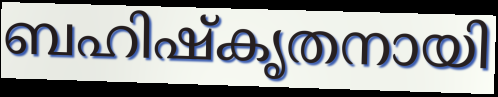
ബഹിഷ്കൃതനായി